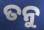
ତନୁ